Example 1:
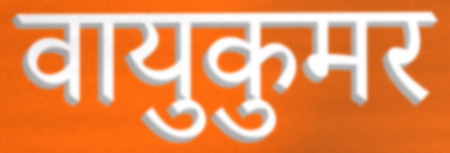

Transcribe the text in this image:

वायुकुमर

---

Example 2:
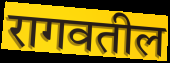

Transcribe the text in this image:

रागवतील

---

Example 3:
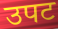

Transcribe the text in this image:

उपट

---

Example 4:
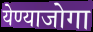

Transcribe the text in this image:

येण्याजोगा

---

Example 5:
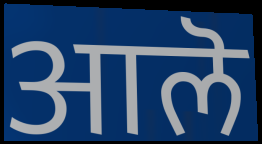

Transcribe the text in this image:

आलॆ